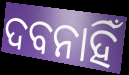
ଦବନାହିଁ